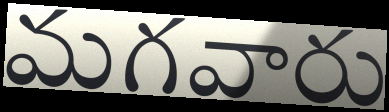
మగవారు